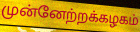
முன்னேற்றக்கழகம்